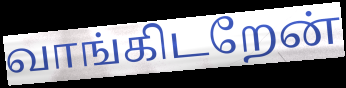
வாங்கிடறேன்